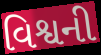
વિશ્વની